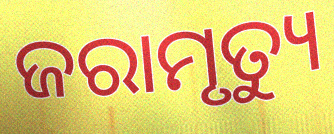
ଜରାମୃତ୍ୟୁ